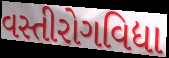
વસ્તીરોગવિદ્યા